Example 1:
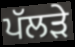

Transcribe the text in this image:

ਪੱਲੜੇ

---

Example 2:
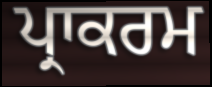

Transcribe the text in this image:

ਪ੍ਰਾਕਰਮ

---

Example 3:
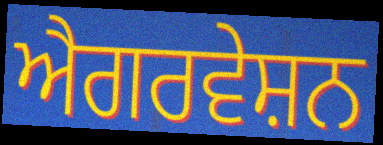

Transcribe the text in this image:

ਐਗਰਵੇਸ਼ਨ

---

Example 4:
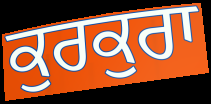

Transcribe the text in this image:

ਕੁਰਕੁਰਾ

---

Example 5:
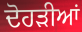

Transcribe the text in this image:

ਦੋਹੜੀਆਂ